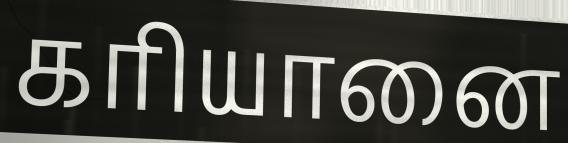
கரியானை